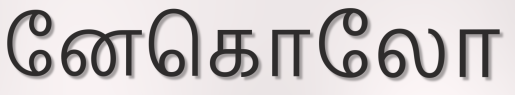
னேகொலோ